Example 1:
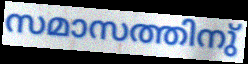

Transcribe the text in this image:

സമാസത്തിനു്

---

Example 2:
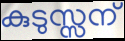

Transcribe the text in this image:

കുടുസ്സന്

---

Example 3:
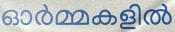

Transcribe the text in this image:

ഓർമ്മകളിൽ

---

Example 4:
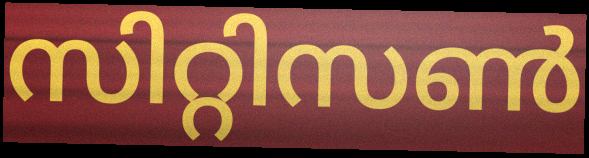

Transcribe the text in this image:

സിറ്റിസൺ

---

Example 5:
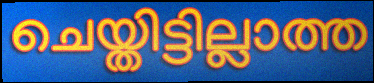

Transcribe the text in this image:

ചെയ്തിട്ടില്ലാത്ത